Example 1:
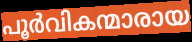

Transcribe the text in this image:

പൂർവികന്മാരായ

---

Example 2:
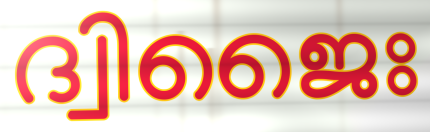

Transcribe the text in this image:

ദ്വിജൈഃ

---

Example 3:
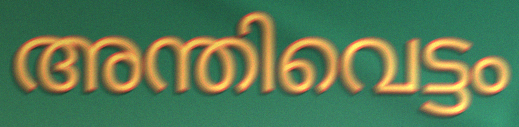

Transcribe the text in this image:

അന്തിവെട്ടം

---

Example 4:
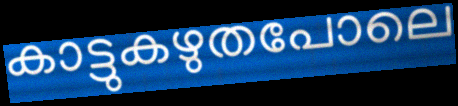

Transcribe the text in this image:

കാട്ടുകഴുതപോലെ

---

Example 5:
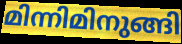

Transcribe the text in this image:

മിന്നിമിനുങ്ങി